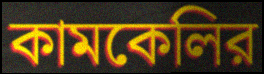
কামকেলির